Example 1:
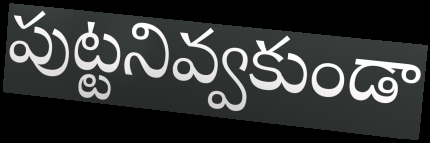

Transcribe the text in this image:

పుట్టనివ్వకుండా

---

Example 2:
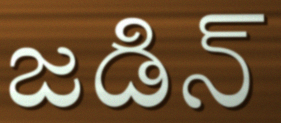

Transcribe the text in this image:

జడిన్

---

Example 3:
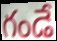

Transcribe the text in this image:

గండే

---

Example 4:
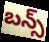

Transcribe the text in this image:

బన్స్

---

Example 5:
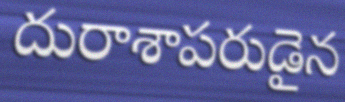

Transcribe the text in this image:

దురాశాపరుడైన